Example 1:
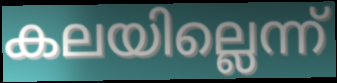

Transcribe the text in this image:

കലയില്ലെന്ന്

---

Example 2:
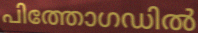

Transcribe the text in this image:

പിത്തോഗഡിൽ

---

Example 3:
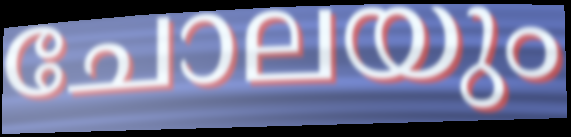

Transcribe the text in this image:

ചോലയും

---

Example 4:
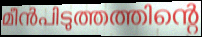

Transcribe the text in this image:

മീൻപിടുത്തത്തിന്റെ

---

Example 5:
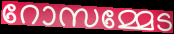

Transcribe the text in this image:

റോസമ്മേട